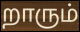
றாரும்